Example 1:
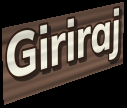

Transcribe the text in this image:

Giriraj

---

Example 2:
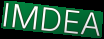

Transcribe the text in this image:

IMDEA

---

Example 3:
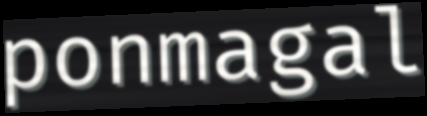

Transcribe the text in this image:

ponmagal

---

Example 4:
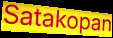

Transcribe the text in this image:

Satakopan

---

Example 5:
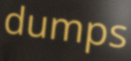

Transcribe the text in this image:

dumps